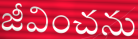
జీవించను